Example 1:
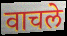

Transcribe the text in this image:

वाचले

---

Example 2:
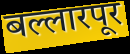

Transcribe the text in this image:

बल्लारपूर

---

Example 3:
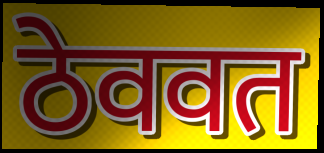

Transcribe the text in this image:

ठेववत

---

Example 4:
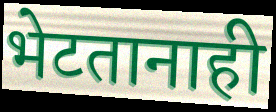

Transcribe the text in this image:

भेटतानाही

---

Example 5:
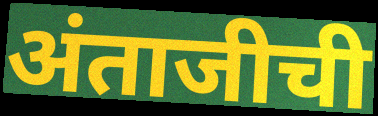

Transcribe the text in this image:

अंताजीची